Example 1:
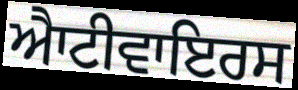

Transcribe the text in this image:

ਐਾਟੀਵਾਇਰਸ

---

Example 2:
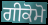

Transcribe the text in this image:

ਗੀਕੋਮੋ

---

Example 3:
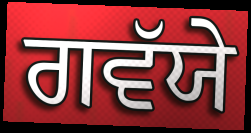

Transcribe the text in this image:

ਗਵੱਯੇ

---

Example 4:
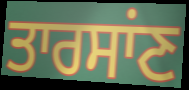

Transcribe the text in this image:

ਤਾਰਸਾਂਣ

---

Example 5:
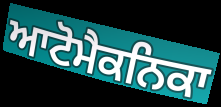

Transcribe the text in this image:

ਆਟੋਮੈਕਨਿਕਾ